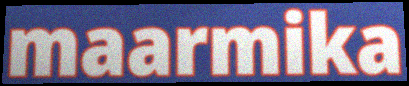
maarmika